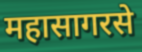
महासागरसे